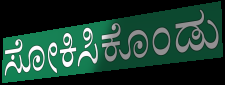
ಸೋಕಿಸಿಕೊಂಡು